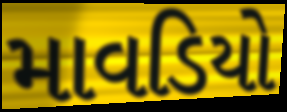
માવડિયો